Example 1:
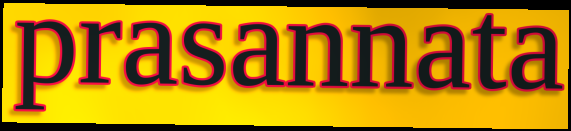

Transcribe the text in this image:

prasannata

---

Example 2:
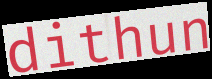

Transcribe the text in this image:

dithun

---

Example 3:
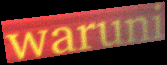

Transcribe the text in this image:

waruni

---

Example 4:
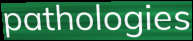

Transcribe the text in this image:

pathologies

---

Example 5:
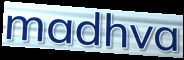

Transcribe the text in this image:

madhva